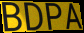
BDPA